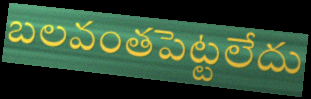
బలవంతపెట్టలేదు